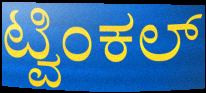
ಟ್ವಿಂಕಲ್